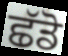
ਛੱਡੋ